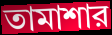
তামাশার